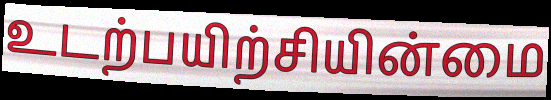
உடற்பயிற்சியின்மை